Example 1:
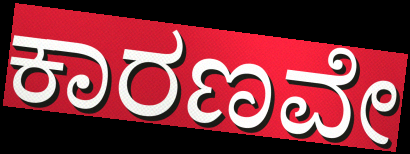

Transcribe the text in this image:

ಕಾರಣವೇ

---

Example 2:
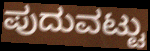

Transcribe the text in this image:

ಪುದುವಟ್ಟು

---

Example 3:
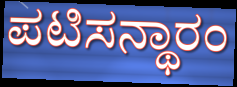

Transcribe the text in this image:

ಪಟಿಸನ್ಥಾರಂ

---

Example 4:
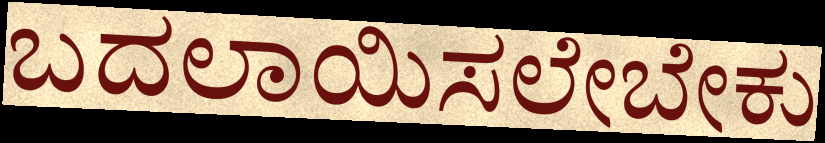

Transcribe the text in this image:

ಬದಲಾಯಿಸಲೇಬೇಕು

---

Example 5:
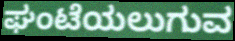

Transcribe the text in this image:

ಘಂಟೆಯಲುಗುವ